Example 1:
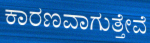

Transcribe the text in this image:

ಕಾರಣವಾಗುತ್ತೇವೆ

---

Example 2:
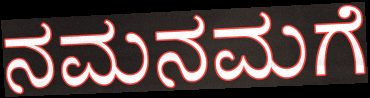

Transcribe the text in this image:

ನಮನಮಗೆ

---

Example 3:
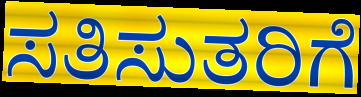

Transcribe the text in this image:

ಸತಿಸುತರಿಗೆ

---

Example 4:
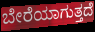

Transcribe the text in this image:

ಬೇರೆಯಾಗುತ್ತದೆ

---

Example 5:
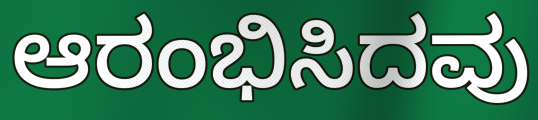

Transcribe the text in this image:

ಆರಂಭಿಸಿದವು